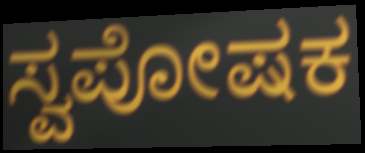
ಸ್ವಪೋಷಕ